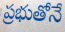
ప్రభుతోనే